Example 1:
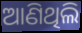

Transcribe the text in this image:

ଆଣିଥିଲି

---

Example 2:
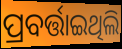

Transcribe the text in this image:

ପ୍ରବର୍ତ୍ତାଇଥିଲି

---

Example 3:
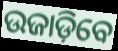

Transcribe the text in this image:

ଉଜାଡ଼ିବେ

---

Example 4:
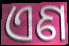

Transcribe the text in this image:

ଏଣ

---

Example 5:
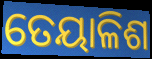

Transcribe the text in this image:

ତେୟାଳିଶ